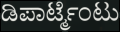
ಡಿಪಾರ್ಟ್ಮೆಂಟು